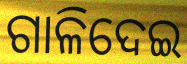
ଗାଳିଦେଇ